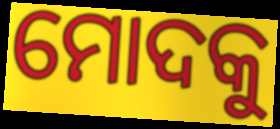
ମୋଦକୁ